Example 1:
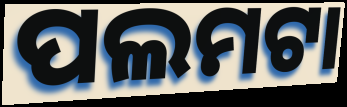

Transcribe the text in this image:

ପଲମଟା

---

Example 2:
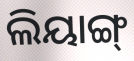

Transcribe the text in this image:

ଲିୟାଙ୍ଗ୍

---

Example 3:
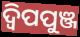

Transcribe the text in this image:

ଦ୍ଵିପପୁଞ୍ଜ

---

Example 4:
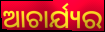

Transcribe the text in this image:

ଆଚାର୍ଯ୍ୟର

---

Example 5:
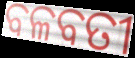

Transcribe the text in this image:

ବଳବତୀ